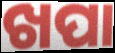
ଖପା